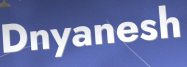
Dnyanesh